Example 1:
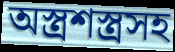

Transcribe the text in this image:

অস্ত্রশস্ত্রসহ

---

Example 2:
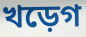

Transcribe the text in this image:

খড়েগ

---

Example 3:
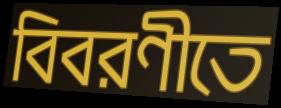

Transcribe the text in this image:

বিবরণীতে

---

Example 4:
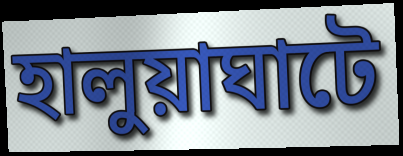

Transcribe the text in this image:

হালুয়াঘাটে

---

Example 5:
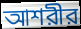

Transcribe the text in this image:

আশরীর